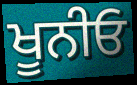
ਖੂਨੀਓ